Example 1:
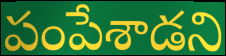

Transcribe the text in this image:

పంపేశాడని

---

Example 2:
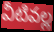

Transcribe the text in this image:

వీటివల్ల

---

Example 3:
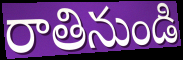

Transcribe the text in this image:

రాతినుండి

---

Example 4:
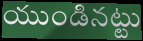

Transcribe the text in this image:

యుండినట్టు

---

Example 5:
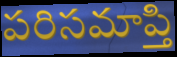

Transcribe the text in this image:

పరిసమాప్తి